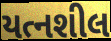
યત્નશીલ